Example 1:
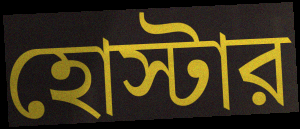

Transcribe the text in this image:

হোস্টার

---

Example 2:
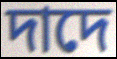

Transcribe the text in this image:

দাদে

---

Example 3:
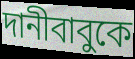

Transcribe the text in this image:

দানীবাবুকে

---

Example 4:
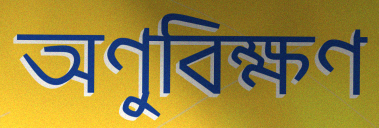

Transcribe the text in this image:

অণুবিক্ষণ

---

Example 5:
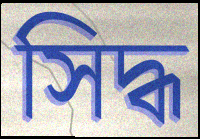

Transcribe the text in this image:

সিদ্ধ